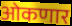
ओकणार